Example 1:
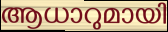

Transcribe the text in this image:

ആധാറുമായി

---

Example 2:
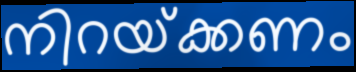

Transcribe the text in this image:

നിറയ്‌ക്കണം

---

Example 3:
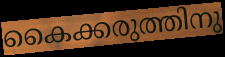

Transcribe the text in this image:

കൈക്കരുത്തിനു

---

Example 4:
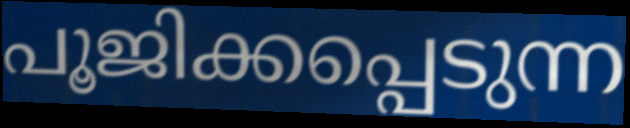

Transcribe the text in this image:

പൂജിക്കപ്പെടുന്ന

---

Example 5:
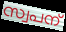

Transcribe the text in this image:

സ്വപന്